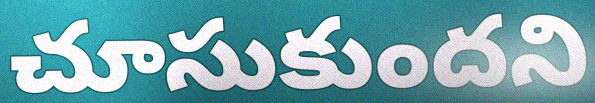
చూసుకుందని